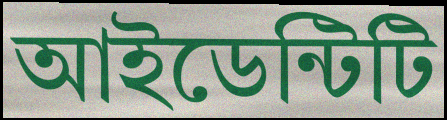
আইডেন্টিটি